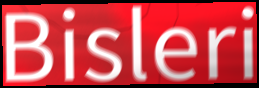
Bisleri